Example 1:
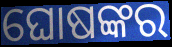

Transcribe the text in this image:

ଘୋଷଙ୍କର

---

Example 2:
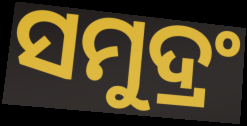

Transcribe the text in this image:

ସମୁଦ୍ରଂ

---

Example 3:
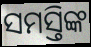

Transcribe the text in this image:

ସମସ୍ତିଙ୍କ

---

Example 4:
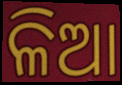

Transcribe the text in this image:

ଳିଆ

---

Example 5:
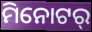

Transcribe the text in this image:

ମିନୋଟର୍